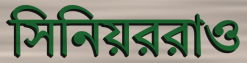
সিনিয়ররাও